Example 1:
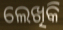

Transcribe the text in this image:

ଲେଖିକି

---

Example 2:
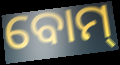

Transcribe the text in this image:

ବୋମ୍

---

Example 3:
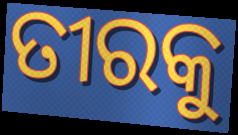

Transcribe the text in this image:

ତୀରକୁ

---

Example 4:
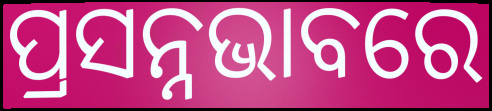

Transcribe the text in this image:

ପ୍ରସନ୍ନଭାବରେ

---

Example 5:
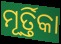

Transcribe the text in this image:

ମୂର୍ତ୍ତିକା